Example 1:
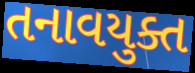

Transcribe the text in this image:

તનાવયુક્ત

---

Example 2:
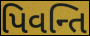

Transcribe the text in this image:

પિવન્તિ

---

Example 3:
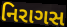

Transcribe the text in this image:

નિરાગસ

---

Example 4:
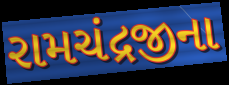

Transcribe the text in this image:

રામચંદ્રજીના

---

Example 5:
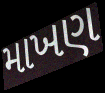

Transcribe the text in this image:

માખણ